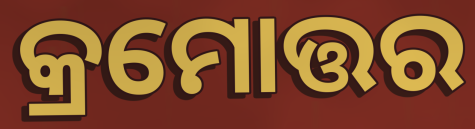
କ୍ରମୋତ୍ତର